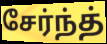
சேர்ந்த்